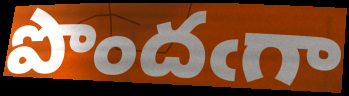
పొందఁగా